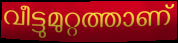
വീട്ടുമുറ്റത്താണ്